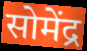
सोमेंद्र